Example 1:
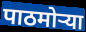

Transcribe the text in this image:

पाठमोऱ्या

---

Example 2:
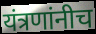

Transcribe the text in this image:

यंत्रणांनीच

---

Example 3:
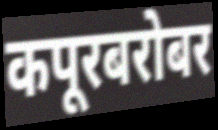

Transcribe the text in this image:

कपूरबरोबर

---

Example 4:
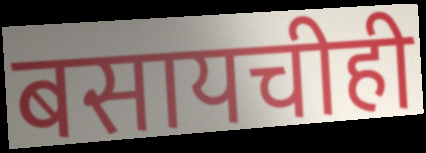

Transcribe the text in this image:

बसायचीही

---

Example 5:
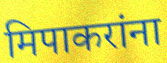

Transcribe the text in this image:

मिपाकरांना